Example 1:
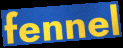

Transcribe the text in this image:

fennel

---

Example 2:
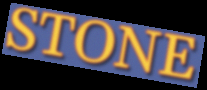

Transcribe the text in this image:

STONE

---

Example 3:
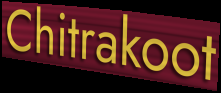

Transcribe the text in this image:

Chitrakoot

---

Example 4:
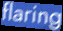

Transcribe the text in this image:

flaring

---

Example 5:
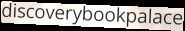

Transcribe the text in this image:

discoverybookpalace